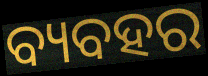
ବ୍ୟବହର